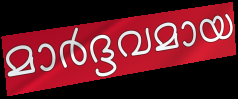
മാർദ്ദവമായ